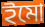
ইমো